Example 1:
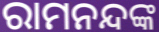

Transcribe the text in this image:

ରାମନନ୍ଦଙ୍କ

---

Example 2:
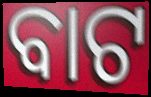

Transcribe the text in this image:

ବାଟ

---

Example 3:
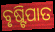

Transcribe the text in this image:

ବୃଷ୍ଟିପାତ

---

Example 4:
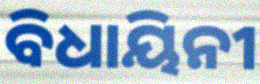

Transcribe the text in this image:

ବିଧାୟିନୀ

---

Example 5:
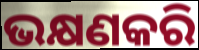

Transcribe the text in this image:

ଭକ୍ଷଣକରି